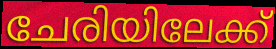
ചേരിയിലേക്ക്